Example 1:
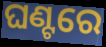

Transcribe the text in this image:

ଘଣ୍ଟରେ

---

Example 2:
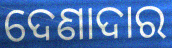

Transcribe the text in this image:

ଦେଣାଦାର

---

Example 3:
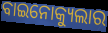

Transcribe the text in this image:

ବାଇନୋକ୍ୟୁଲାର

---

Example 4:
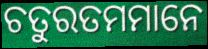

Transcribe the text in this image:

ଚତୁରତମମାନେ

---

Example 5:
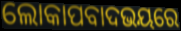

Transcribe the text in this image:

ଲୋକାପବାଦଭୟରେ